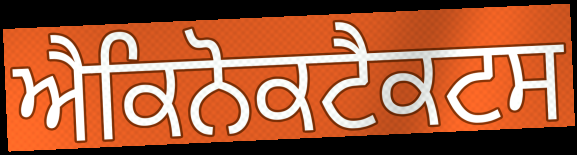
ਐਕਿਨੋਕਟੈਕਟਸ